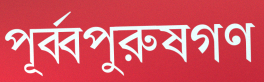
পূর্ব্বপুরুষগণ